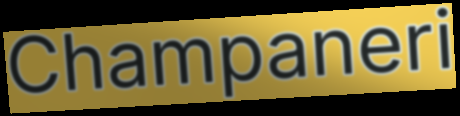
Champaneri